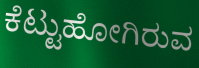
ಕೆಟ್ಟುಹೋಗಿರುವ